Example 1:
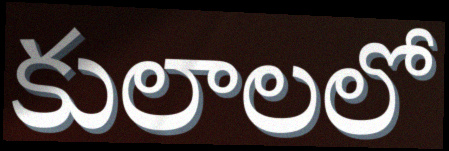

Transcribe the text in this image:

కులాలలో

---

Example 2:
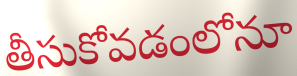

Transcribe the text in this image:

తీసుకోవడంలోనూ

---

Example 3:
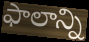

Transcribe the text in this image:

ఫాలాన్ని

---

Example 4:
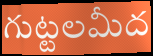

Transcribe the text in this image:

గుట్టలమీద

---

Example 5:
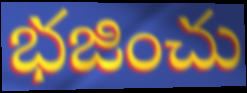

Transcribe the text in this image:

భజించు